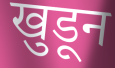
खुडून